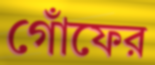
গোঁফের